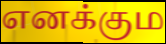
எனக்கும